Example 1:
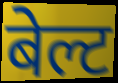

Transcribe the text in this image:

बेल्ट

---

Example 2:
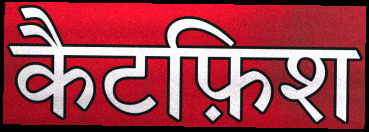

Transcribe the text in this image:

कैटफ़िश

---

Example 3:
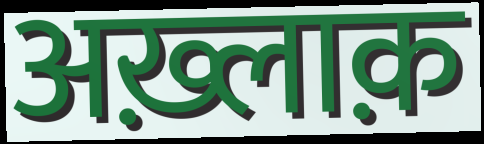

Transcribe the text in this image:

अख़्लाक़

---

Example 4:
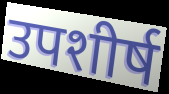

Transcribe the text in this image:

उपशीर्ष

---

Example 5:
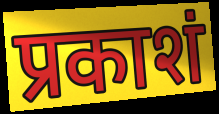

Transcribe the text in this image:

प्रकाशं